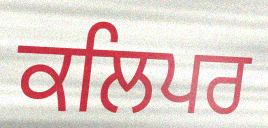
ਕਲਿਪਰ